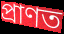
প্ৰাণত